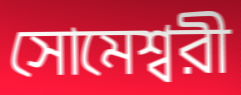
সোমেশ্বরী